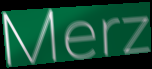
Merz